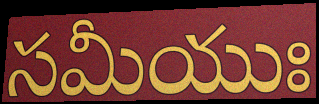
సమీయుః